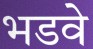
भडवे